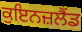
ਕੁਇਨਜ਼ਲੈਂਡ